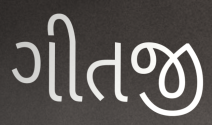
ગીતજી